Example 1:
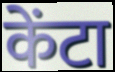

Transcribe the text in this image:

केंटा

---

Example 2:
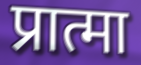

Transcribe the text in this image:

प्रात्मा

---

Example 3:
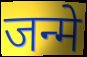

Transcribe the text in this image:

जन्मे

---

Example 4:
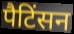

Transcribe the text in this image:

पैटिंसन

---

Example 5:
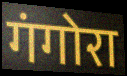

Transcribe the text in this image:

गंगोरा